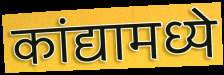
कांद्यामध्ये